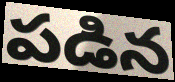
పడిన